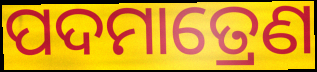
ପଦମାତ୍ରେଣ